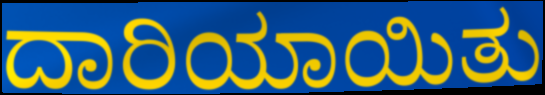
ದಾರಿಯಾಯಿತು